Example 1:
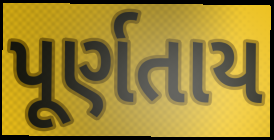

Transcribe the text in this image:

પૂર્ણતાય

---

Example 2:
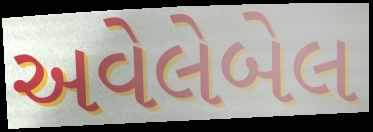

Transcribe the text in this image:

અવેલેબેલ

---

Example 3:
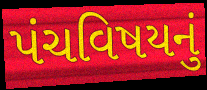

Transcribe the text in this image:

પંચવિષયનું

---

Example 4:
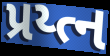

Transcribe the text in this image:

પ્રય્ત્ન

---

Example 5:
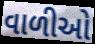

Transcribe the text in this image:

વાળીઓ